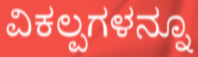
ವಿಕಲ್ಪಗಳನ್ನೂ